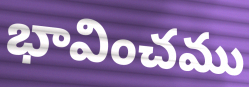
భావించము